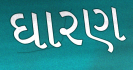
ઘારણ